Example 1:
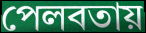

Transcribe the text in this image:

পেলবতায়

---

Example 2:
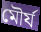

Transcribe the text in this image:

মৌর্য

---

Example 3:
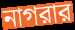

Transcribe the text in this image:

নাগরার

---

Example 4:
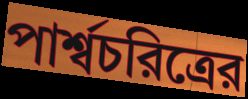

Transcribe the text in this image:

পার্শ্বচরিত্রের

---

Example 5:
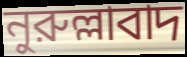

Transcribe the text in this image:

নুরুল্লাবাদ